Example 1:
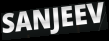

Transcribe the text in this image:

SANJEEV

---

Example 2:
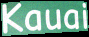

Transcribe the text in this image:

Kauai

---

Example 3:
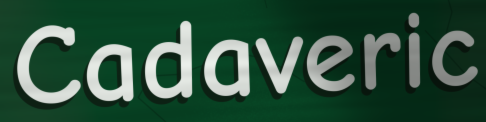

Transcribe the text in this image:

Cadaveric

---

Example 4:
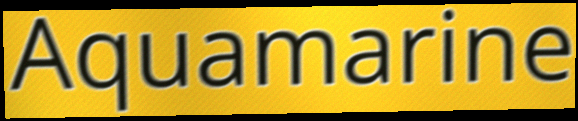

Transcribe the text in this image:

Aquamarine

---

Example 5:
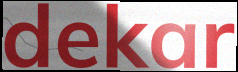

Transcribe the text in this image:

dekar